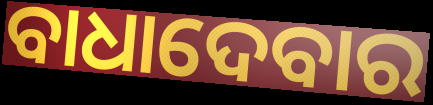
ବାଧାଦେବାର